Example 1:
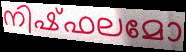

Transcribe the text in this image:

നിഷ്ഫലമോ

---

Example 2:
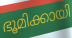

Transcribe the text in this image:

ഭൂമിക്കായി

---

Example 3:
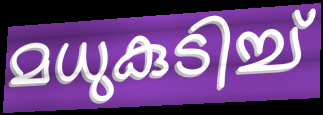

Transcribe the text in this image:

മധുകുടിച്ച്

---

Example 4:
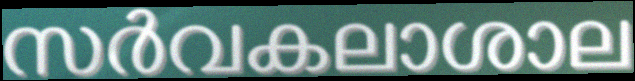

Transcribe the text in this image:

സർവകലാശാല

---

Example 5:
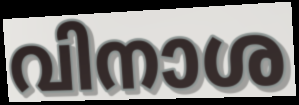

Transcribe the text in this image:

വിനാശ